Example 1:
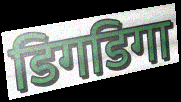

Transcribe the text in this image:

डिगडिगा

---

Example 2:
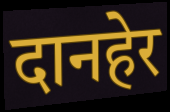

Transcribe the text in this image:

दानहेर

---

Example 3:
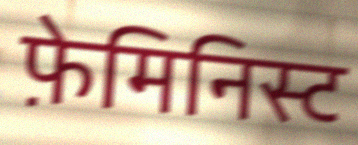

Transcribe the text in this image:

फ़ेमिनिस्ट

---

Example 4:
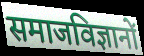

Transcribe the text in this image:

समाजविज्ञानों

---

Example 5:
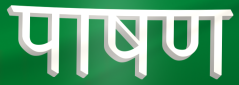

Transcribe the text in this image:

पाषण